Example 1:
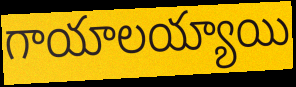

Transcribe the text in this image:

గాయాలయ్యాయి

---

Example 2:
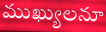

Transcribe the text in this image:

ముఖ్యులనూ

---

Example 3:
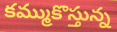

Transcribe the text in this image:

కమ్ముకొస్తున్న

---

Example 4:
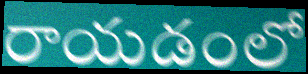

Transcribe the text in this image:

రాయడంలో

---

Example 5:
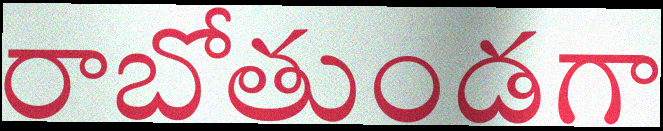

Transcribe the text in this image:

రాబోతుండగా